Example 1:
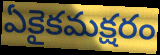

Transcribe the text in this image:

ఏకైకమక్షరం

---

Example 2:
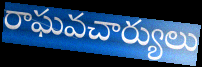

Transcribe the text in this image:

రాఘవచార్యులు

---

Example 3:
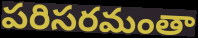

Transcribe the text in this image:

పరిసరమంతా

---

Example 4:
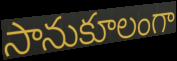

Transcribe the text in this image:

సానుకూలంగా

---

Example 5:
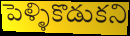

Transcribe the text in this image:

పెళ్ళికొడుకని